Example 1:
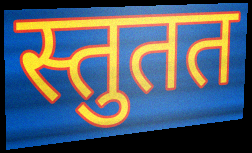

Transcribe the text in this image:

स्तुतत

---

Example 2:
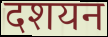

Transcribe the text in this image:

दशयन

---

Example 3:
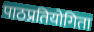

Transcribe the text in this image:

पाठप्रतियोगिता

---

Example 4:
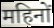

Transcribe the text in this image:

महिनों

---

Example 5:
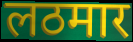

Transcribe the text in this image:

लठमार